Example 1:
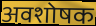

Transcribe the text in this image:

अवशोषक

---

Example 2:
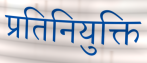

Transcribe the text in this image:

प्रतिनियुक्ति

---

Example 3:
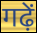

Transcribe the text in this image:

गढ़ें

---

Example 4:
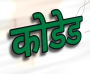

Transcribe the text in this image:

कोडेड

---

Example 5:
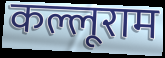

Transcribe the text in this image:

कल्लूराम